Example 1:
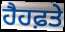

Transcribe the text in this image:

ਹੈਹਫ਼ਤੇ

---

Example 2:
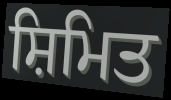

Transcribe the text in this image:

ਸ਼ਿਮਿਤ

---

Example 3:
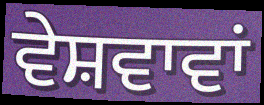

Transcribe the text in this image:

ਵੇਸ਼ਵਾਵਾਂ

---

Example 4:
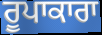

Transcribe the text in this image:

ਰੂਪਾਕਾਰਾ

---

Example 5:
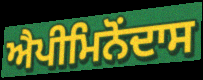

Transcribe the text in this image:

ਐਪੀਮਿਨੋਂਦਾਸ